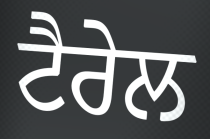
ਟੈਰੇਲ